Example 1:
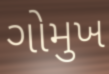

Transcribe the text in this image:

ગોમુખ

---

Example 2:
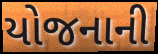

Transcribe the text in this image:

યોજનાની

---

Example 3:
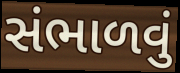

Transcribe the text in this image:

સંભાળવું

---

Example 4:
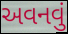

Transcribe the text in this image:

અવનવું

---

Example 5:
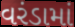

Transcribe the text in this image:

વરંડામાં